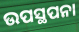
ଉପସ୍ଥପନା